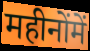
महीनोंमें